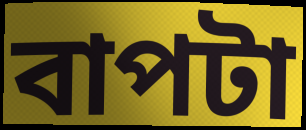
বাপটা